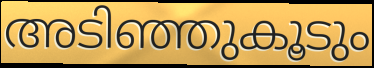
അടിഞ്ഞുകൂടും